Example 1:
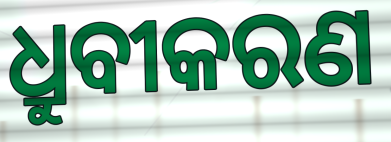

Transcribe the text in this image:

ଧ୍ରୁବୀକରଣ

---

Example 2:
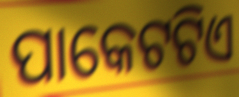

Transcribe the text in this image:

ପାକେଟଟିଏ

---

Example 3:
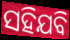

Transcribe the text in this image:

ସହିଯବି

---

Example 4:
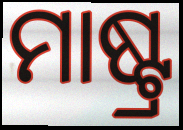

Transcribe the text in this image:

ମାଷ୍ଟ୍ର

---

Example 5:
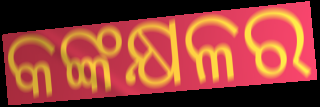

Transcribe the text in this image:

କଙ୍କକ୍ଷଳର